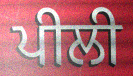
ਪੀਲੀ